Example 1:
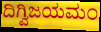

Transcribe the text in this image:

ದಿಗ್ವಿಜಯಮಂ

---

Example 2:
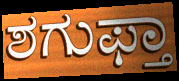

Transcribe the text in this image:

ಶಗುಫ್ತಾ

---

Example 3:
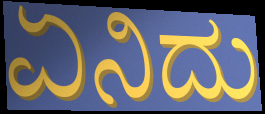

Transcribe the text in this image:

ಏನಿದು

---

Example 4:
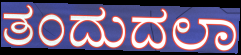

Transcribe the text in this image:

ತಂದುದಲಾ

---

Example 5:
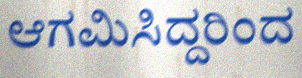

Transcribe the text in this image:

ಆಗಮಿಸಿದ್ದರಿಂದ